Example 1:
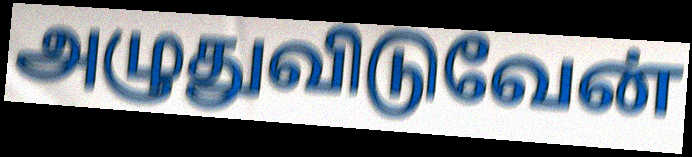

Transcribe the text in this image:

அழுதுவிடுவேன்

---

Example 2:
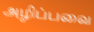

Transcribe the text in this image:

அழிப்பவை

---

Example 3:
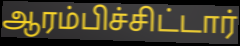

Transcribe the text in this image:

ஆரம்பிச்சிட்டார்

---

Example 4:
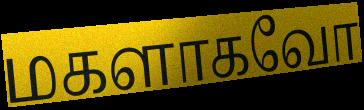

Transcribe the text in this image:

மகளாகவோ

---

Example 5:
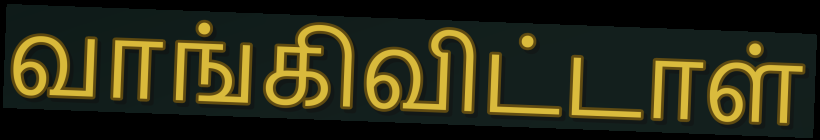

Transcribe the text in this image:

வாங்கிவிட்டாள்